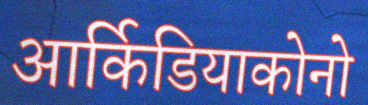
आर्किडियाकोनो